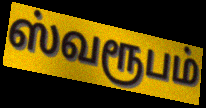
ஸ்வரூபம்